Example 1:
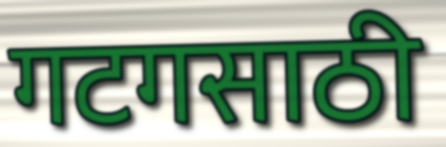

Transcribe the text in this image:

गटगसाठी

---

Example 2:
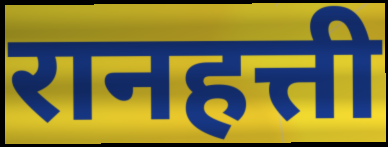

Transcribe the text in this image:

रानहत्ती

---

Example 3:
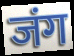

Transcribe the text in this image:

जंग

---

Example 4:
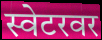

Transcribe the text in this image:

स्वेटरवर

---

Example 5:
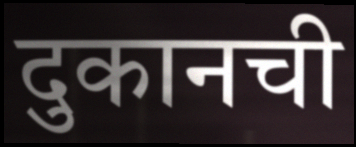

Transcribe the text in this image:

दुकानची